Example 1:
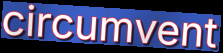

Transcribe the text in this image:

circumvent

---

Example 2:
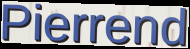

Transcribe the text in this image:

Pierrend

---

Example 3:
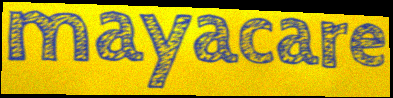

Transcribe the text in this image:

mayacare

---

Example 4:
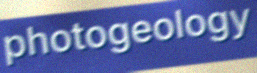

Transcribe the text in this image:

photogeology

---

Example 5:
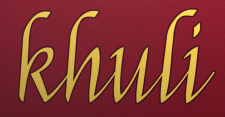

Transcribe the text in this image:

khuli